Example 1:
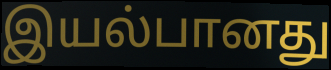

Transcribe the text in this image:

இயல்பானது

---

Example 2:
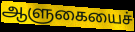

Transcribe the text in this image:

ஆளுகையைச்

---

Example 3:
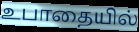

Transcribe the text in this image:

உபாதையில்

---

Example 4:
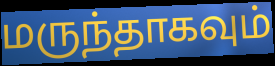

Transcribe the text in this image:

மருந்தாகவும்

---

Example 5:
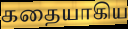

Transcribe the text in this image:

கதையாகிய